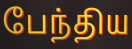
பேந்திய